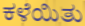
ಕಳೆಯಿತು